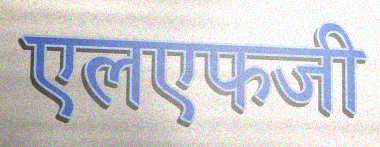
एलएफजी